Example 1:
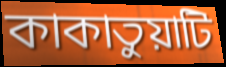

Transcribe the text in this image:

কাকাতুয়াটি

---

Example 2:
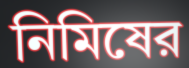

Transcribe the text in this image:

নিমিষের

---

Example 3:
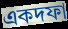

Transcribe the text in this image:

একদফা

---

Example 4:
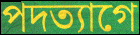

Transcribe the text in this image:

পদত্যাগে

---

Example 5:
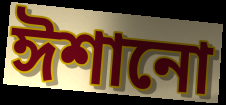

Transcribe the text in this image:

ঈশানো